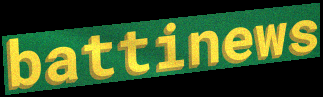
battinews